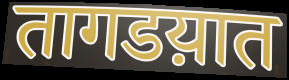
तागडय़ात